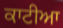
ਕਾਟੀਆ